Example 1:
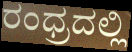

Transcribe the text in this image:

ರಂಧ್ರದಲ್ಲಿ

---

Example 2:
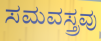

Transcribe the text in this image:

ಸಮವಸ್ತ್ರವು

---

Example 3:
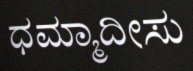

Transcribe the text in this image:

ಧಮ್ಮಾದೀಸು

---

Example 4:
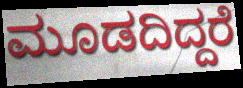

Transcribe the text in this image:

ಮೂಡದಿದ್ದರೆ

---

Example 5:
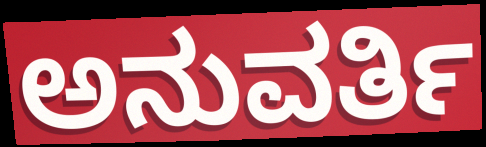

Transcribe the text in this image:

ಅನುವರ್ತಿ